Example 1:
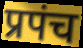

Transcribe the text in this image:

प्रपंच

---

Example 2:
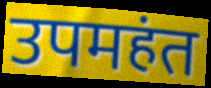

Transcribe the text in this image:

उपमहंत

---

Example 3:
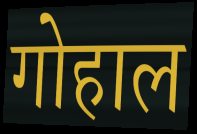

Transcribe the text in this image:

गोहाल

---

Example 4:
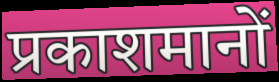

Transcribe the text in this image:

प्रकाशमानों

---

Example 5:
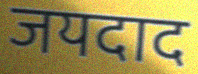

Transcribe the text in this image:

जयदाद